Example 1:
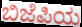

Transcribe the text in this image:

ಬಿಜೆಪಿಯ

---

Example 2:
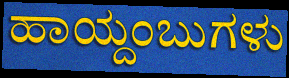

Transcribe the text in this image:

ಹಾಯ್ದಂಬುಗಳು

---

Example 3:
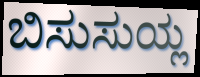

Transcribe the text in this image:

ಬಿಸುಸುಯ್ಲ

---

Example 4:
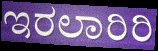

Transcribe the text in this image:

ಇರಲಾರಿರಿ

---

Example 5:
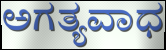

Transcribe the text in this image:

ಅಗತ್ಯವಾಧ